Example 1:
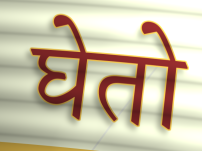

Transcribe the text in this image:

घेतो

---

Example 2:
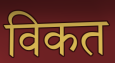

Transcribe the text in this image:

विकत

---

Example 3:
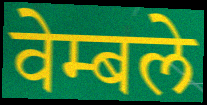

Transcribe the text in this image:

वेम्बले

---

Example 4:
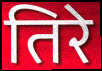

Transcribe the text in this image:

तिरे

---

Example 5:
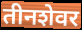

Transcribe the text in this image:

तीनशेवर